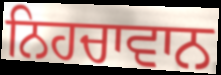
ਨਿਹਚਾਵਾਨ